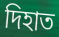
দিহাত